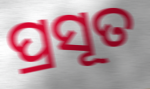
ପ୍ରସୂତ